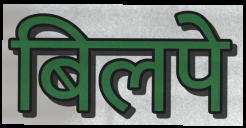
बिलपे